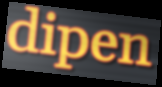
dipen